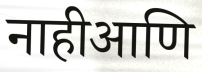
नाहीआणि